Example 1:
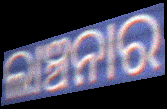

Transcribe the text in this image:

ଲାଞ୍ଚନାର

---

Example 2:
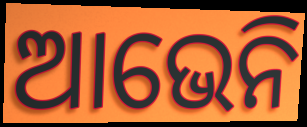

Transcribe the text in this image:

ଆଭେନି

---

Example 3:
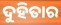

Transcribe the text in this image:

ଦୁହିତାର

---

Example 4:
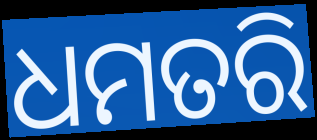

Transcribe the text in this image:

ଧମତରି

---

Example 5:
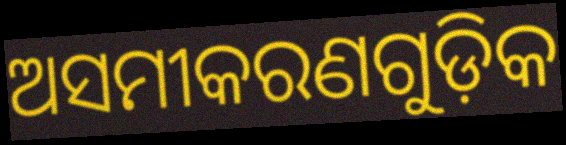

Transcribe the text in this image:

ଅସମୀକରଣଗୁଡ଼ିକ